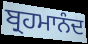
ਬ੍ਰਹਮਾਨੰਦ